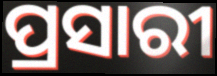
ପ୍ରସାରୀ